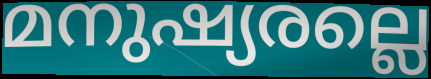
മനുഷ്യരല്ലെ